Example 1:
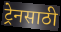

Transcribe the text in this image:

ट्रेनसाठी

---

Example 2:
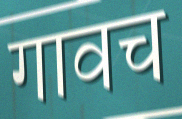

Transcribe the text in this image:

गावच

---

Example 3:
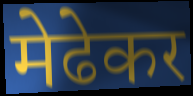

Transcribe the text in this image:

मेढेकर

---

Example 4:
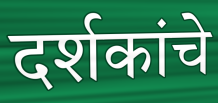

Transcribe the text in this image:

दर्शकांचे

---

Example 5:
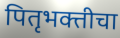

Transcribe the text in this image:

पितृभक्तीचा